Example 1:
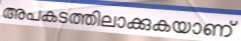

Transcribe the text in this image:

അപകടത്തിലാക്കുകയാണ്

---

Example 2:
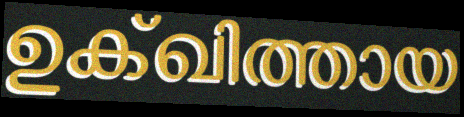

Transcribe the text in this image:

ഉക്ഖിത്തായ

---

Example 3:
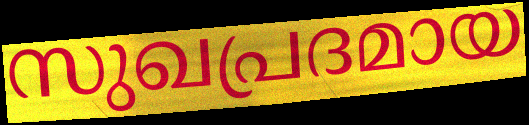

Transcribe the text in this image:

സുഖപ്രദമായ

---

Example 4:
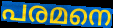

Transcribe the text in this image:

പരമനെ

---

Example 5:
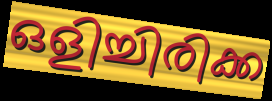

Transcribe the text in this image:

ഒളിച്ചിരിക്ക